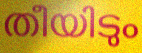
തീയിടും